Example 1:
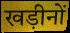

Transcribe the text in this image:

खड़ीनों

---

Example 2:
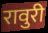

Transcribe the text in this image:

रावुरी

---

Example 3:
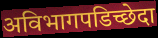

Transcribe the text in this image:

अविभागपडिच्छेदा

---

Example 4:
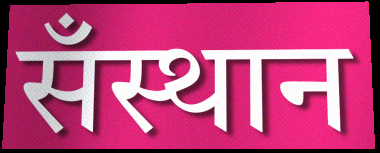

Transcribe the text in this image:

सँस्थान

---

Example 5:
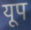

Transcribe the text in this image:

यूप